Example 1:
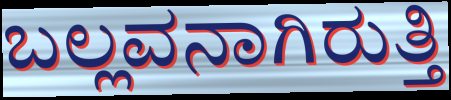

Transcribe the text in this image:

ಬಲ್ಲವನಾಗಿರುತ್ತಿ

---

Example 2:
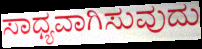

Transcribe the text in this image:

ಸಾಧ್ಯವಾಗಿಸುವುದು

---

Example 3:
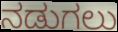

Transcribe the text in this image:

ನಡುಗಲು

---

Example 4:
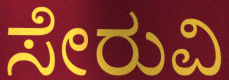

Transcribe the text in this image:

ಸೇರುವಿ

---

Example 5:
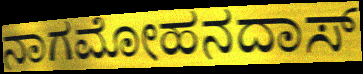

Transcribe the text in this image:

ನಾಗಮೋಹನದಾಸ್